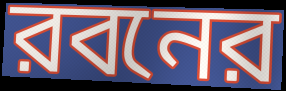
রবনের